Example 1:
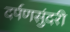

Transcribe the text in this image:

दर्पणसुंदरी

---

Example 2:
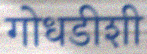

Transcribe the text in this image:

गोधडीशी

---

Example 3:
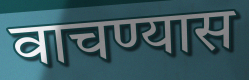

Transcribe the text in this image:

वाचण्यास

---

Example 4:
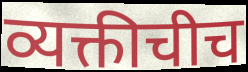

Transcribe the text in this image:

व्यक्तीचीच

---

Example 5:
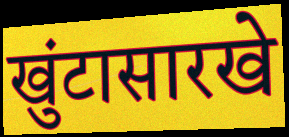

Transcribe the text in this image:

खुंटासारखे